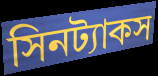
সিনট্যাকস